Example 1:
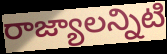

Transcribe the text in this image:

రాజ్యాలన్నిటి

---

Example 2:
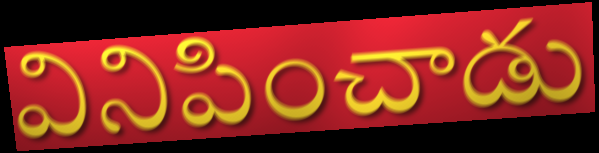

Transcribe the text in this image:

వినిపించాడు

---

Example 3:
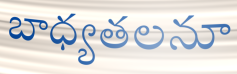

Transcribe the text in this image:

బాధ్యతలనూ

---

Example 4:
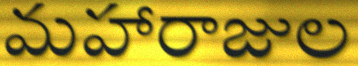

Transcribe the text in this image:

మహారాజుల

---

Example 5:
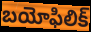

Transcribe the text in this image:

బయోఫిలిక్